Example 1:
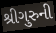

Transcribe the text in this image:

શ્રીગુરુની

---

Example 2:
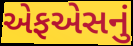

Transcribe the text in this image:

એફએસનું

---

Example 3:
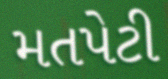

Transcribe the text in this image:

મતપેટી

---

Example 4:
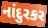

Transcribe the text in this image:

નાંદુરકર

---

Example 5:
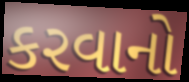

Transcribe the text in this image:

કરવાનો